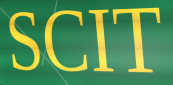
SCIT